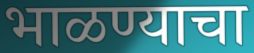
भाळण्याचा